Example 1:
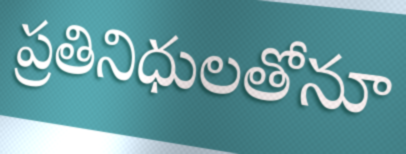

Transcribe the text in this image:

ప్రతినిధులతోనూ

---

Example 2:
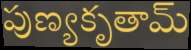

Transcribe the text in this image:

పుణ్యకృతామ్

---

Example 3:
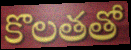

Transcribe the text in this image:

కొలతతో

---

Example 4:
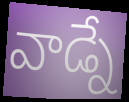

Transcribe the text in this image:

వాడ్నే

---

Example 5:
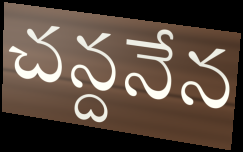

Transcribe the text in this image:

చన్దనేన